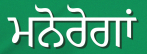
ਮਨੋਰੋਗਾਂ